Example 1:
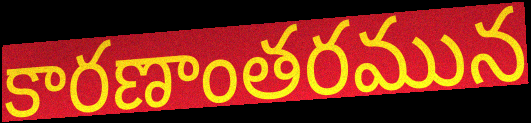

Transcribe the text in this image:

కారణాంతరమున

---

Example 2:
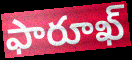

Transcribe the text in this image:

ఫారూఖ్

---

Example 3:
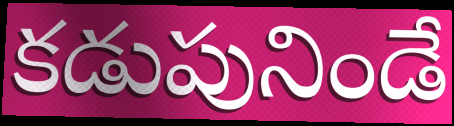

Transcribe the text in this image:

కడుపునిండే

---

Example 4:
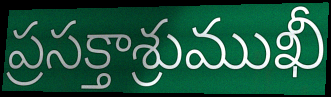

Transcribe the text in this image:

ప్రసక్తాశ్రుముఖీ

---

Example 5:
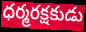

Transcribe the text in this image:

ధర్మరక్షకుడు